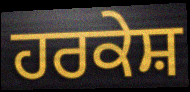
ਹਰਕੇਸ਼